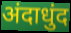
अंदाधुंद